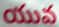
యువ